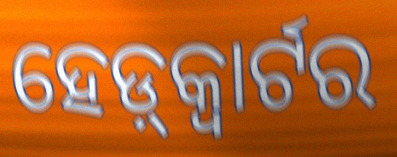
ହେଡ଼୍‌କ୍ୱାର୍ଟର